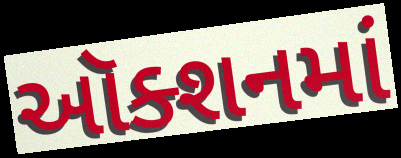
ઑક્શનમાં